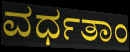
ವರ್ಧತಾಂ